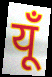
यूँ